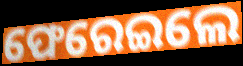
ଫେରେଇଲେ